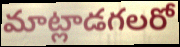
మాట్లాడగలరో